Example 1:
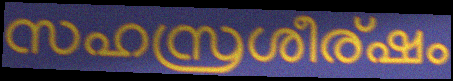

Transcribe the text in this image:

സഹസ്രശീര്ഷം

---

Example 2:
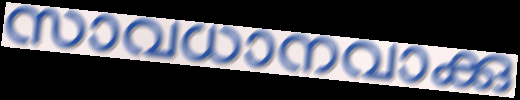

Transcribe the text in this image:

സാവധാനവാക്കു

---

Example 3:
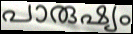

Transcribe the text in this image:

പാരുഷ്യം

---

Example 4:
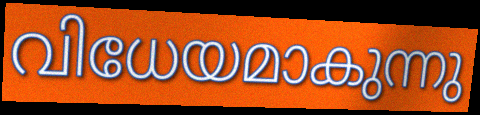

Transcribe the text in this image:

വിധേയമാകുന്നു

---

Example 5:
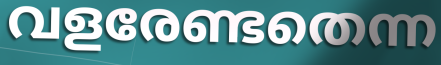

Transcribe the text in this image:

വളരേണ്ടതെന്ന